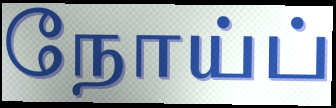
நோய்ப்